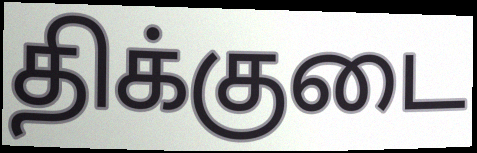
திக்குடை